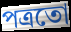
পত্ৰতো